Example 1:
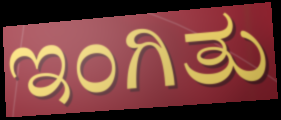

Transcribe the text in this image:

ಇಂಗಿತು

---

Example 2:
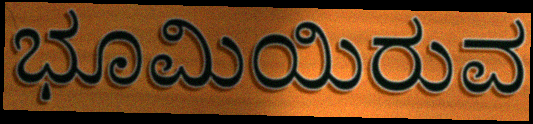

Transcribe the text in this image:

ಭೂಮಿಯಿರುವ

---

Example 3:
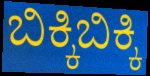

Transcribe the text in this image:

ಬಿಕ್ಕಿಬಿಕ್ಕಿ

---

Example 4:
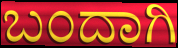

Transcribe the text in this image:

ಬಂದಾಗಿ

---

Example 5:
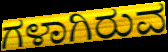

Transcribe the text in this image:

ಗಳಾಗಿರುವ